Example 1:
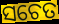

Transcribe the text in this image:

ସଚେତ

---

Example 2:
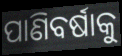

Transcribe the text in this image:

ପାଣିବର୍ଷାକୁ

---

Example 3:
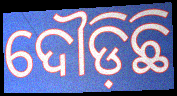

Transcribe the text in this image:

ଦୌଡ଼ିଛି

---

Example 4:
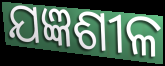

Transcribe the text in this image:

ଯଜ୍ଞଶୀଳ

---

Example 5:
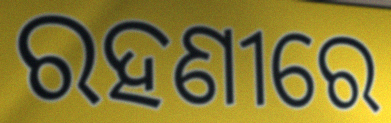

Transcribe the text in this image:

ରହଣୀରେ